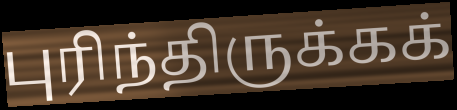
புரிந்திருக்கக்